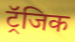
ट्रॅजिक